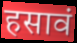
हसावं